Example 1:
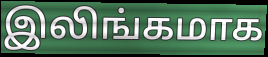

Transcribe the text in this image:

இலிங்கமாக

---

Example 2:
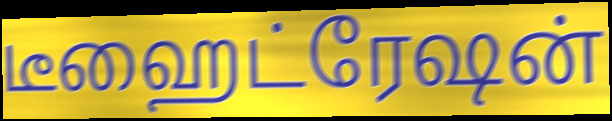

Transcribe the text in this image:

டீஹைட்ரேஷன்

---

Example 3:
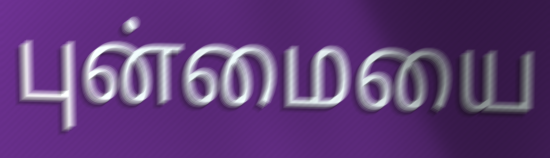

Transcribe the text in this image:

புன்மையை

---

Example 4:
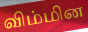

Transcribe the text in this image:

விம்மின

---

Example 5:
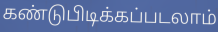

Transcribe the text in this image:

கண்டுபிடிக்கப்படலாம்